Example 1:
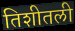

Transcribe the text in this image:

तिशीतली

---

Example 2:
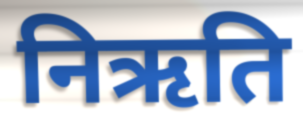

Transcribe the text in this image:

निऋति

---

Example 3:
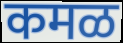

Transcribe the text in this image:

कमळ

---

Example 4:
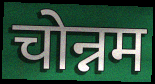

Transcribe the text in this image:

चोन्नम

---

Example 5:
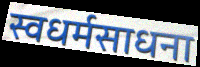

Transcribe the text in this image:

स्वधर्मसाधना